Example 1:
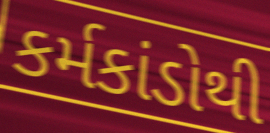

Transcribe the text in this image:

કર્મકાંડોથી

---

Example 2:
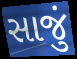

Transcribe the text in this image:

સાજું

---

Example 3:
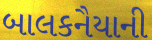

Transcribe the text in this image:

બાલકનૈયાની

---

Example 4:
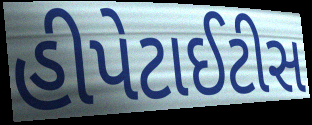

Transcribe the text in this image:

હીપેટાઈટીસ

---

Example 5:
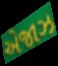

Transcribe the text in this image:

એજાઝ